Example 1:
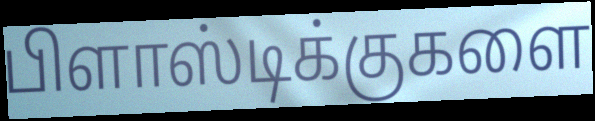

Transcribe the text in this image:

பிளாஸ்டிக்குகளை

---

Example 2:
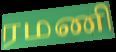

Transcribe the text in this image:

ரமணி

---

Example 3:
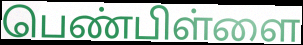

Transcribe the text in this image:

பெண்பிள்ளை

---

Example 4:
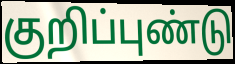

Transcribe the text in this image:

குறிப்புண்டு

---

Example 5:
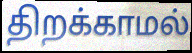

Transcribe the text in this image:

திறக்காமல்